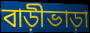
বাড়ীভাড়া